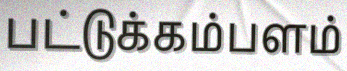
பட்டுக்கம்பளம்